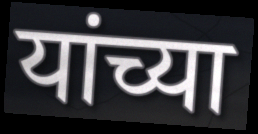
यांच्या